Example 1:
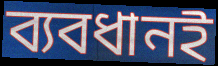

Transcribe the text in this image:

ব্যবধানই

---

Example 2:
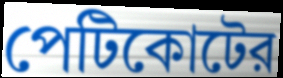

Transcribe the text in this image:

পেটিকোটের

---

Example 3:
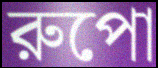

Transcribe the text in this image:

রুপো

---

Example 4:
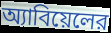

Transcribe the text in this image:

অ্যাবিয়েলের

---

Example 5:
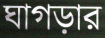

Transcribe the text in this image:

ঘাগড়ার